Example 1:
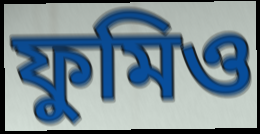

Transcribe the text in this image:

ফুমিও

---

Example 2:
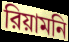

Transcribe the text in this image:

রিয়ামনি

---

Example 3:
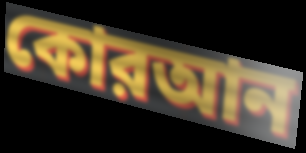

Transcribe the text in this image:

কোরআন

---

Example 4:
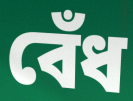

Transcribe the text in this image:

বেঁধ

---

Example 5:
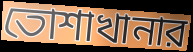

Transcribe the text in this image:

তোশাখানার